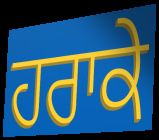
ਹਰਾਕੇ